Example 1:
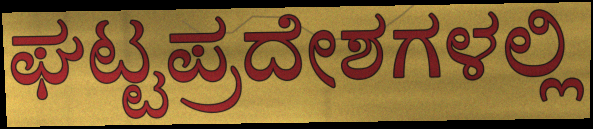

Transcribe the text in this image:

ಘಟ್ಟಪ್ರದೇಶಗಳಲ್ಲಿ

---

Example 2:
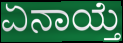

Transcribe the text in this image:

ಏನಾಯ್ತೆ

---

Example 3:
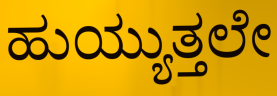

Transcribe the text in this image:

ಹುಯ್ಯುತ್ತಲೇ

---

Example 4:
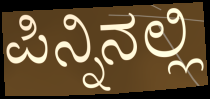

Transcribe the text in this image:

ಪಿನ್ನಿನಲ್ಲಿ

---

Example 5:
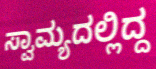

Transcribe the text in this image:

ಸ್ವಾಮ್ಯದಲ್ಲಿದ್ದ